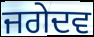
ਜਗੇਦਵ